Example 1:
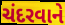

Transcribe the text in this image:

ચંદરવાને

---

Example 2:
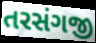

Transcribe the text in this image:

તરસંગજી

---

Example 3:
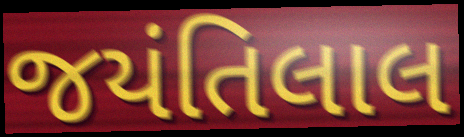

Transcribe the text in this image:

જયંતિલાલ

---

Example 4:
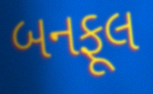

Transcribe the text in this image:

બનફૂલ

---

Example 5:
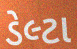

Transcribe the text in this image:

ડેલ્ટા